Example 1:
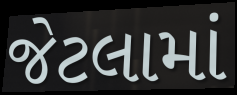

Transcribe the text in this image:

જેટલામાં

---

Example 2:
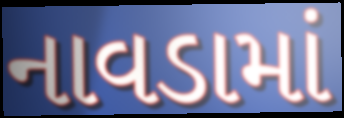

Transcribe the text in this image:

નાવડામાં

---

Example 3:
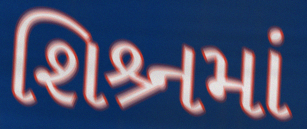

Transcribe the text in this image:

શિશ્ર્નમાં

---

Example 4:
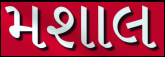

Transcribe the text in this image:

મશાલ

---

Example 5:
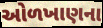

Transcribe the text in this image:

ઓળખાણના